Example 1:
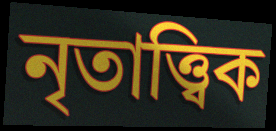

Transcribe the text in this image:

নৃতাত্ত্বিক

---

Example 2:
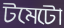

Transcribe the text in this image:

টমেটো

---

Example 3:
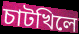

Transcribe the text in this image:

চাটখিলে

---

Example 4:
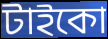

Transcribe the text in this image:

টাইকো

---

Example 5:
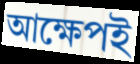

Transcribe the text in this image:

আক্ষেপই